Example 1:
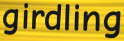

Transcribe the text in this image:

girdling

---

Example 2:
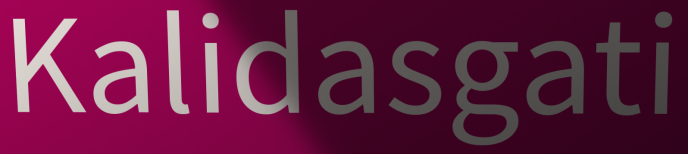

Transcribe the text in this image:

Kalidasgati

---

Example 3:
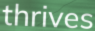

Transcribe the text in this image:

thrives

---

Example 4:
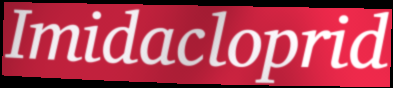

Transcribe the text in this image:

Imidacloprid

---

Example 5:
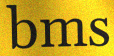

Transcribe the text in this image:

bms